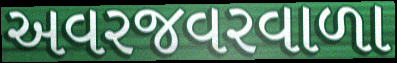
અવરજવરવાળા